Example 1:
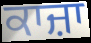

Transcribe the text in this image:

ਕਾਜ਼ਾ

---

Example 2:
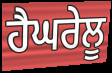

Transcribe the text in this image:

ਹੈਘਰੇਲੂ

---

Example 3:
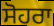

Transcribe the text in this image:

ਸੋਹਰਾ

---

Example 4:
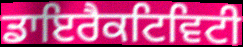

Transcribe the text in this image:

ਡਾਇਰੈਕਟਿਵਿਟੀ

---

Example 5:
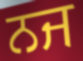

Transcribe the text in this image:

ਨਜ